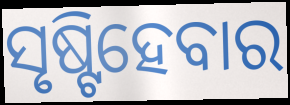
ସୃଷ୍ଟିହେବାର